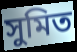
সুমিত